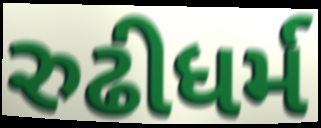
રુઢીધર્મ